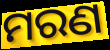
ମରଣ